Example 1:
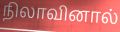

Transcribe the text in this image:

நிலாவினால்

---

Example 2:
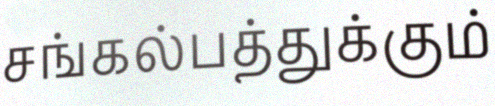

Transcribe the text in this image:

சங்கல்பத்துக்கும்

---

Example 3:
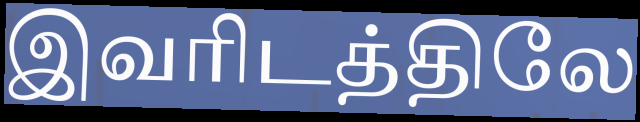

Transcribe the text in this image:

இவரிடத்திலே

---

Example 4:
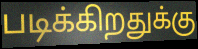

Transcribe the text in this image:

படிக்கிறதுக்கு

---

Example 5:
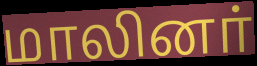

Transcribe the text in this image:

மாலினர்